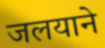
जलयाने